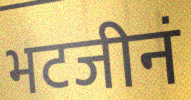
भटजीनं